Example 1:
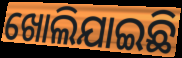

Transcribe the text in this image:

ଖୋଲିଯାଇଛି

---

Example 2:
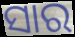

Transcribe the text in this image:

ସାର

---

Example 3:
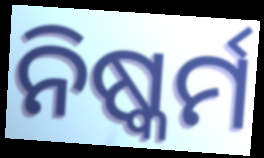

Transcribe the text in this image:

ନିଷ୍କର୍ମ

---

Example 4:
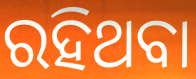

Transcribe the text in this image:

ରହିଥବା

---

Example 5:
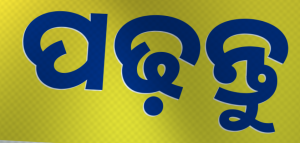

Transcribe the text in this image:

ପଢ଼ନ୍ତୁ